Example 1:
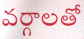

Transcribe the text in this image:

వర్గాలతో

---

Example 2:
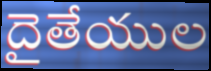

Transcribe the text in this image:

దైతేయుల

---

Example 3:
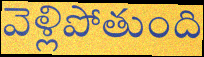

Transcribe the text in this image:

వెళ్లిపోతుంది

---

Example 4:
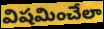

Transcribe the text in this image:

విషమించేలా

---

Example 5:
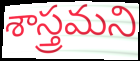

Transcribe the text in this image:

శాస్త్రమని